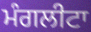
ਮੰਗਲੀਟਾ